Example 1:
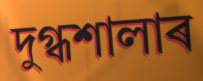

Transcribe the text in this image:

দুগ্ধশালাৰ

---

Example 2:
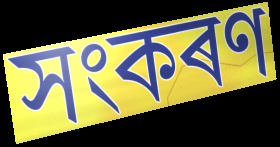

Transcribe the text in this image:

সংকৰণ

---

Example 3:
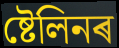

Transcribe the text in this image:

ষ্টেলিনৰ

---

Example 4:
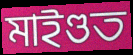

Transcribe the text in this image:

মাইণ্ডত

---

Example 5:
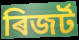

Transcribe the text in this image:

ৰিজৰ্ট